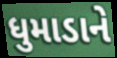
ધુમાડાને